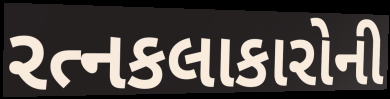
રત્નકલાકારોની